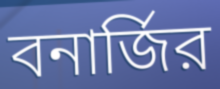
বনার্জির